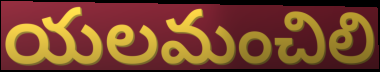
యలమంచిలి